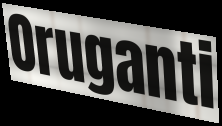
Oruganti